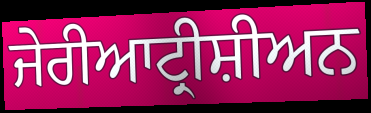
ਜੇਰੀਆਟ੍ਰੀਸ਼ੀਅਨ